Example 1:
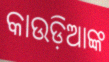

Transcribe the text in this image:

କାଉଡ଼ିଆଙ୍କ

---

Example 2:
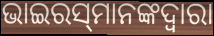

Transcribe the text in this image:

ଭାଇରସ୍‌ମାନଙ୍କଦ୍ୱାରା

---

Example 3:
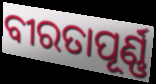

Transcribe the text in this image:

ବୀରତାପୂର୍ଣ୍ଣ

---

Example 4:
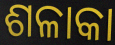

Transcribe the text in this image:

ଶଳାକା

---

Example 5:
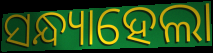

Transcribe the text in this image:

ସନ୍ଧ୍ୟାହେଲା